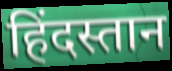
हिंदस्तान